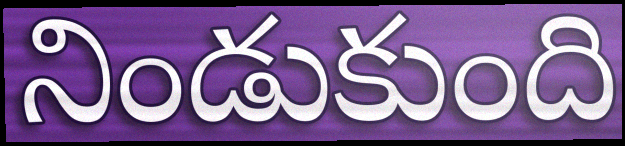
నిండుకుంది